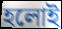
হলোই